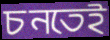
চনতেই